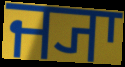
ਜ੍ਯਾ